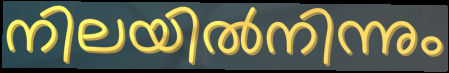
നിലയിൽനിന്നും